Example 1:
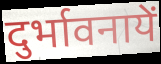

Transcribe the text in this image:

दुर्भावनायें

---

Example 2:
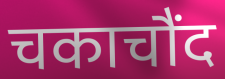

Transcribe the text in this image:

चकाचौंद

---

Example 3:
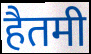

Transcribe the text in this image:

हैतमी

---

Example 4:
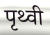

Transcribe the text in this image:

पृथ्वी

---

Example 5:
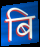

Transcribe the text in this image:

बि